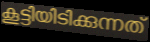
കൂട്ടിയിടിക്കുന്നത്